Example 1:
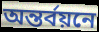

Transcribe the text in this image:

অন্তর্বয়নে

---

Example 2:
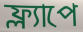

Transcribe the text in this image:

ফ্ল্যাপে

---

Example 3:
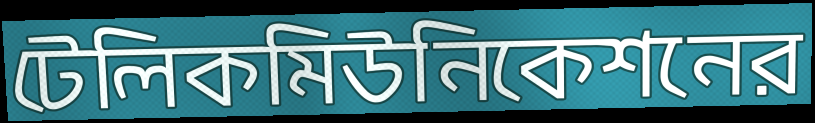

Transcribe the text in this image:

টেলিকমিউনিকেশনের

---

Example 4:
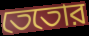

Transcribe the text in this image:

তেতোর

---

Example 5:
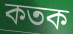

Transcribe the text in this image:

কতক